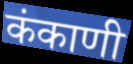
कंकाणी